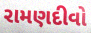
રામણદીવો